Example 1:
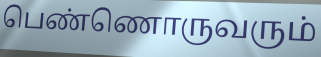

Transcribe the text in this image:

பெண்ணொருவரும்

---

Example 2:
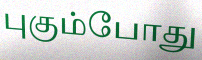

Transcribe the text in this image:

புகும்போது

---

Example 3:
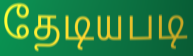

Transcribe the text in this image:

தேடியபடி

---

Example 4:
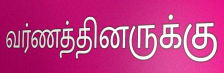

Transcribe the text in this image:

வர்ணத்தினருக்கு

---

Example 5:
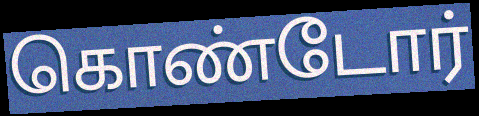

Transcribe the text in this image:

கொண்டோர்